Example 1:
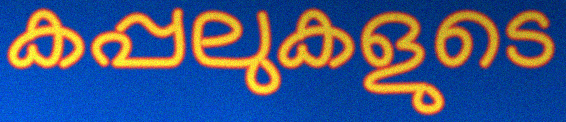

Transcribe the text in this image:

കപ്പലുകളുടെ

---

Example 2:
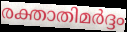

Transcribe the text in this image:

രക്താതിമർദ്ദം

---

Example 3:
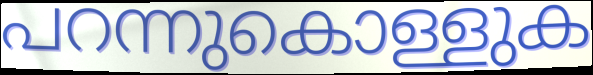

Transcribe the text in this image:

പറന്നുകൊള്ളുക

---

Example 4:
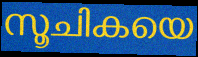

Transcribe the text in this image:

സൂചികയെ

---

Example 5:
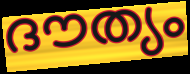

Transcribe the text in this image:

ദൗത്യം